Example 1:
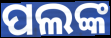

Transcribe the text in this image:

ପଲଙ୍କ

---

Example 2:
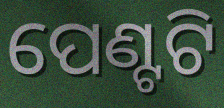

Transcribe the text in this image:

ପେଣ୍ଟଟି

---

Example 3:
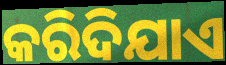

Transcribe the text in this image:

କରିଦିଯାଏ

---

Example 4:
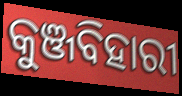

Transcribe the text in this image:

କୁଞ୍ଜବିହାରୀ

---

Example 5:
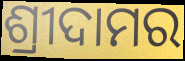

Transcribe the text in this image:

ଶ୍ରୀଦାମର